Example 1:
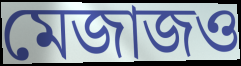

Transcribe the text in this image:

মেজাজও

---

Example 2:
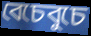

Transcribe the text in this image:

বেচেবুচে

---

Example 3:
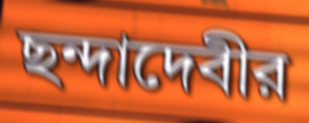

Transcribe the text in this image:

ছন্দাদেবীর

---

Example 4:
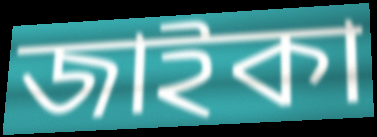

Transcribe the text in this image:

জাইকা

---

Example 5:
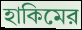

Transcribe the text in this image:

হাকিমের